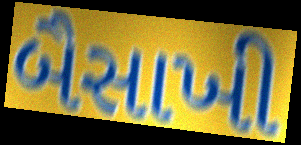
બૈસાખી